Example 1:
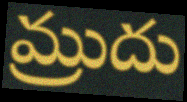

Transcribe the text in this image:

మ్రుదు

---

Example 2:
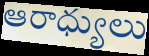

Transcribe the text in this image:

ఆరాధ్యులు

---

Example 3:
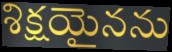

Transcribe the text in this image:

శిక్షయైనను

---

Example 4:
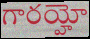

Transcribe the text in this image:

గారయ్హో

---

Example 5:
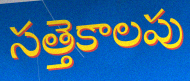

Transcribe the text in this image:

సత్తెకాలపు